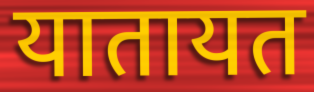
यातायत